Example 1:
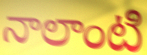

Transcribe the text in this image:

నాలాంటి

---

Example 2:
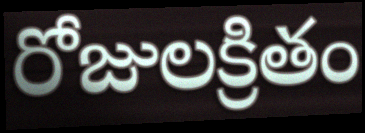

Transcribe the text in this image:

రోజులక్రితం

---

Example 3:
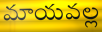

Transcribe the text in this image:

మాయవల్ల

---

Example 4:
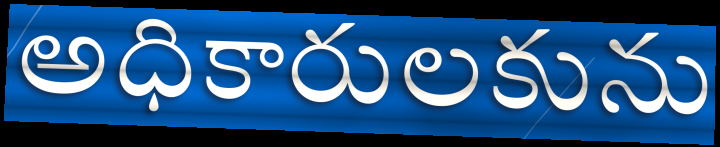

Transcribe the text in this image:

అధికారులకును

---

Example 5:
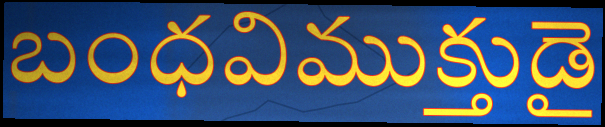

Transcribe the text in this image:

బంధవిముక్తుడై